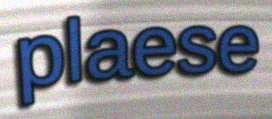
plaese